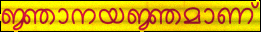
ജ്ഞാനയജ്ഞമാണ്